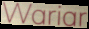
Wariar